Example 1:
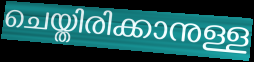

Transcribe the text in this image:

ചെയ്തിരിക്കാനുള്ള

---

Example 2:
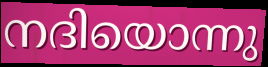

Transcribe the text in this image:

നദിയൊന്നു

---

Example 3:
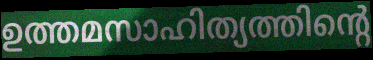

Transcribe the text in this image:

ഉത്തമസാഹിത്യത്തിന്റെ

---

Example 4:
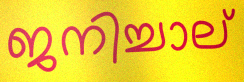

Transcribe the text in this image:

ജനിച്ചാല്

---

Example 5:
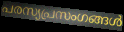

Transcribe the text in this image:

പരസ്യപ്രസംഗങ്ങൾ